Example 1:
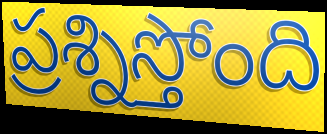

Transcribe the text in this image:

ప్రశ్నిస్తోంది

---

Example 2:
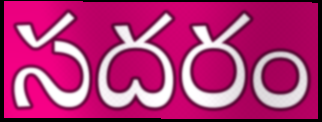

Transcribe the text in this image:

సదరం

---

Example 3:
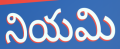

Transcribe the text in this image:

నియమి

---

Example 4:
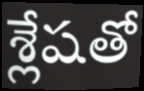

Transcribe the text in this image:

శ్లేషతో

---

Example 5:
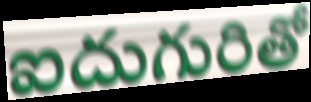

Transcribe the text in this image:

ఐదుగురితో